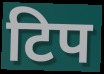
टिप